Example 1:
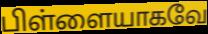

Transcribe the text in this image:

பிள்ளையாகவே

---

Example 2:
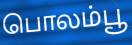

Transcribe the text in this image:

பொலம்பூ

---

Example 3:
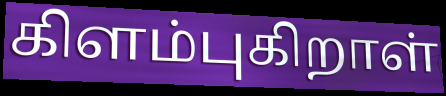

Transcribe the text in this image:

கிளம்புகிறாள்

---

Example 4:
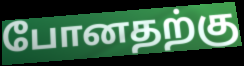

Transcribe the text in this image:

போனதற்கு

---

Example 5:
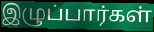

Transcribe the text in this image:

இழுப்பார்கள்